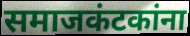
समाजकंटकांना